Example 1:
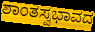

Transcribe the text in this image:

ಶಾಂತಸ್ವಭಾವದ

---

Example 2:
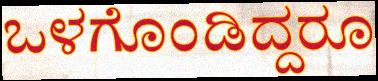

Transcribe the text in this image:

ಒಳಗೊಂಡಿದ್ದರೂ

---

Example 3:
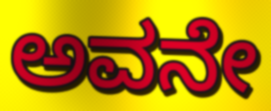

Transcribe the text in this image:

ಅವನೇ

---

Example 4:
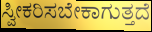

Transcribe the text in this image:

ಸ್ವೀಕರಿಸಬೇಕಾಗುತ್ತದೆ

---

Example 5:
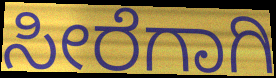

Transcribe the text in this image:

ಸೀರೆಗಾಗಿ